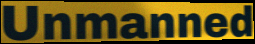
Unmanned